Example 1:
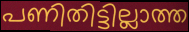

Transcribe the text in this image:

പണിതിട്ടില്ലാത്ത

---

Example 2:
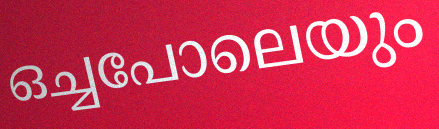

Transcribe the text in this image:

ഒച്ചപോലെയും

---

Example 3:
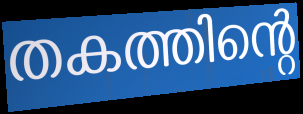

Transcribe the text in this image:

തകത്തിന്റെ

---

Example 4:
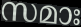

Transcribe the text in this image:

സമാഃ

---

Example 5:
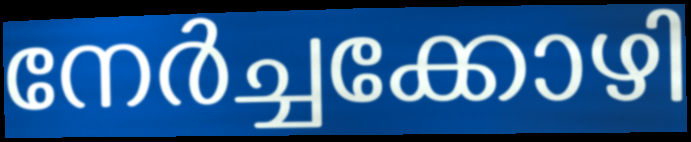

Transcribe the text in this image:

നേർച്ചക്കോഴി